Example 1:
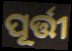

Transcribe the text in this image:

ପୂର୍ତ୍ତୀ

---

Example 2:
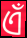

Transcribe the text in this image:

ଏଁ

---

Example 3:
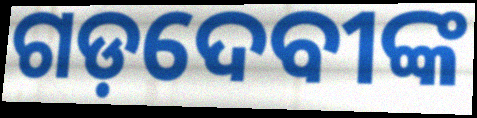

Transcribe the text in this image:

ଗଡ଼ଦେବୀଙ୍କ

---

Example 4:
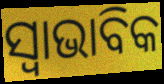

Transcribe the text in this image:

ସ୍ଵାଭାବିକ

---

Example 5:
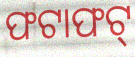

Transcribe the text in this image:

ଫଟାଫଟ୍